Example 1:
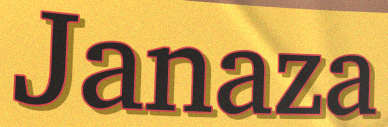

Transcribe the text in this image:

Janaza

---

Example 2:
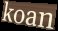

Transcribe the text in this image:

koan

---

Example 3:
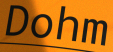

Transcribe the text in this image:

Dohm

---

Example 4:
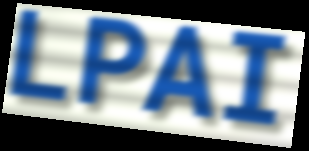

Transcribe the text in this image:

LPAI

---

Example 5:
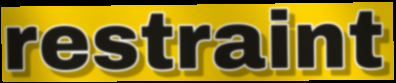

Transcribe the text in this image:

restraint